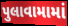
પુલાવામામાં